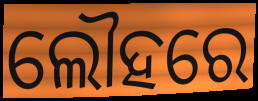
ଲୌହରେ